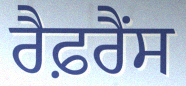
ਰੈਫ਼ਰੈਂਸ